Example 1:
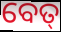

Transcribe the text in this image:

ବେତ୍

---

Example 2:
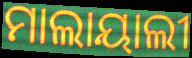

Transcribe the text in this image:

ମାଲାୟାଲୀ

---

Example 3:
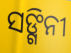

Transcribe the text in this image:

ସଙ୍ଗିନୀ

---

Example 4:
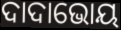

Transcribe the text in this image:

ଦାଦାଭୋୟ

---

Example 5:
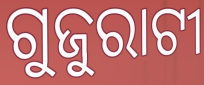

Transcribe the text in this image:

ଗୁଜୁରାଟୀ